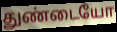
துண்டையோ